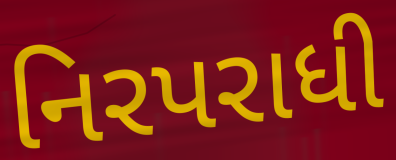
નિરપરાધી